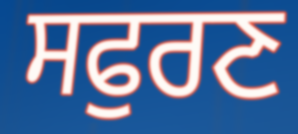
ਸਫੁਰਣ